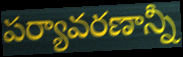
పర్యావరణాన్నీ